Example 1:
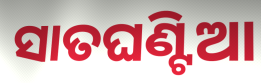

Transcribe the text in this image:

ସାତଘଣ୍ଟିଆ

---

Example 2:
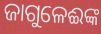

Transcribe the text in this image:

ଜାଗୁଳେଈଙ୍କ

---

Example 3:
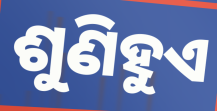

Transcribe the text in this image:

ଶୁଣିହୁଏ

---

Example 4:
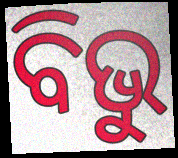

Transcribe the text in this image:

ବିଭୁ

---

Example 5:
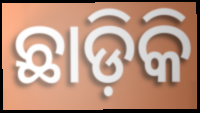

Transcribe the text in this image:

ଛାଡ଼ିକି